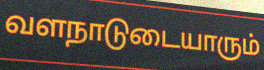
வளநாடுடையாரும்